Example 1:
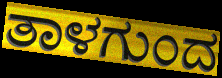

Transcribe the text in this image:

ತಾಳಗುಂದ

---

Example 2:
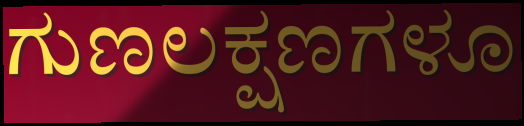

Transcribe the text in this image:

ಗುಣಲಕ್ಷಣಗಳೂ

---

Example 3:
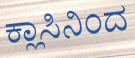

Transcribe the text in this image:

ಕ್ಲಾಸಿನಿಂದ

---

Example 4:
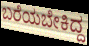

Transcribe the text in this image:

ಬರೆಯಬೇಕಿದ್ದ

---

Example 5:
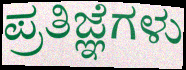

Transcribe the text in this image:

ಪ್ರತಿಜ್ಞೆಗಳು